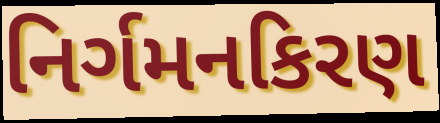
નિર્ગમનકિરણ